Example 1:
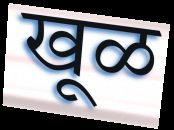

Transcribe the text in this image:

खूळ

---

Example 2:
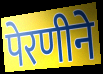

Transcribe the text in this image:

पेरणीने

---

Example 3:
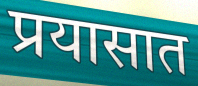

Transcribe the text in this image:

प्रयासात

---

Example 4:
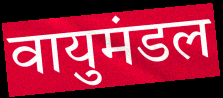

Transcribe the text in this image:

वायुमंडल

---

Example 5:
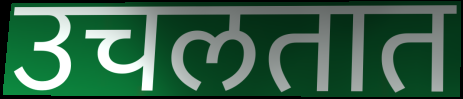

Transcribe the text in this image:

उचलतात